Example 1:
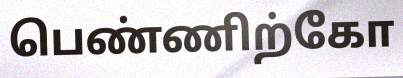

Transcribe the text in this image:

பெண்ணிற்கோ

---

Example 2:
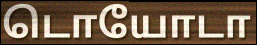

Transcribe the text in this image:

டொயோடா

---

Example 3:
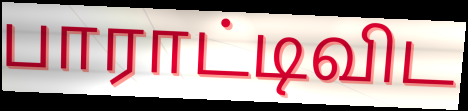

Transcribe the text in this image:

பாராட்டிவிட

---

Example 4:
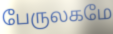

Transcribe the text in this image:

பேருலகமே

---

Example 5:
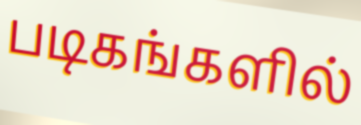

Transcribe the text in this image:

படிகங்களில்